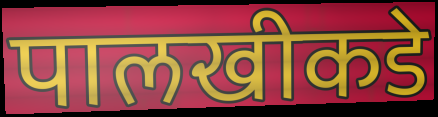
पालखीकडे